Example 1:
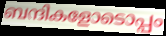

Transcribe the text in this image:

ബന്ദികളോടൊപ്പം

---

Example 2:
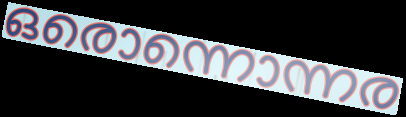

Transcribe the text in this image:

ഒരൊന്നൊന്നര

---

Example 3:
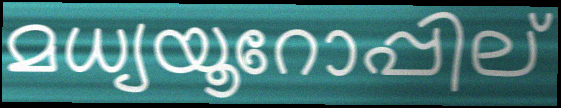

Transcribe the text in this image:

മധ്യയൂറോപ്പില്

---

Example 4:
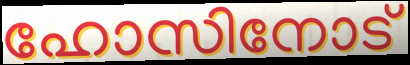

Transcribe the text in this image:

ഹോസിനോട്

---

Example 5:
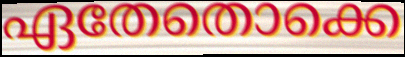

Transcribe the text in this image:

ഏതേതൊക്കെ